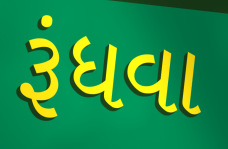
રૂંધવા